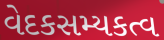
વેદકસમ્યકત્વ